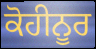
ਕੋਹੀਨੂਰ